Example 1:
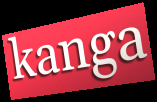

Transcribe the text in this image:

kanga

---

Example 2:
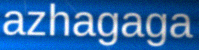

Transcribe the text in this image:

azhagaga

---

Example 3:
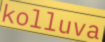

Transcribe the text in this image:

kolluva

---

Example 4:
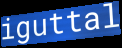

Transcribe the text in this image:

iguttal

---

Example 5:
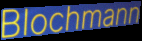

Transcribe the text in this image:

Blochmann